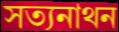
সত্যনাথন